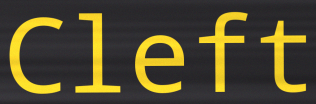
Cleft